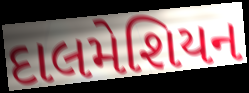
દાલમેશિયન